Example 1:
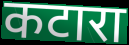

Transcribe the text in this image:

कटारा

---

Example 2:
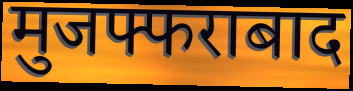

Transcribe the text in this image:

मुजफ्फराबाद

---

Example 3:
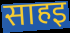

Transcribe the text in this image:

साहइ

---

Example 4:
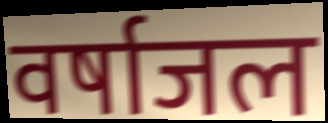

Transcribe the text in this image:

वर्षाजल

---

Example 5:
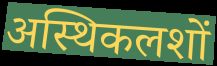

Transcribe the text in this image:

अस्थिकलशों